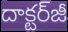
దాక్టర్‌జీ